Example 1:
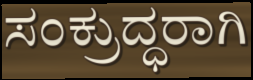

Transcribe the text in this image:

ಸಂಕ್ರುದ್ಧರಾಗಿ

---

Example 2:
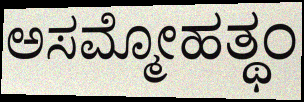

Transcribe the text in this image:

ಅಸಮ್ಮೋಹತ್ಥಂ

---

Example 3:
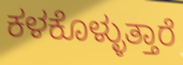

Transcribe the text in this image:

ಕಳಕೊಳ್ಳುತ್ತಾರೆ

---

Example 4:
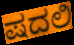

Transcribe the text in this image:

ಷದಲಿ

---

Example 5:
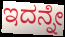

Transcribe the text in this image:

ಇದನ್ನೇ